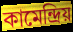
কামেন্দ্রিয়